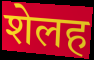
शेलह